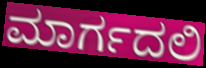
ಮಾರ್ಗದಲಿ